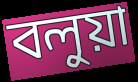
বলুয়া